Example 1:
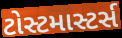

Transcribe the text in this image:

ટોસ્ટમાસ્ટર્સ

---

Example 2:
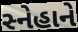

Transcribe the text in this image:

સ્નેહાને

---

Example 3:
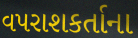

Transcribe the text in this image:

વપરાશકર્તાના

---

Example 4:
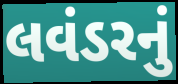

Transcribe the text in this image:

લવંડરનું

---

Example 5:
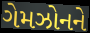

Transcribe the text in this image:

ગેમઝોનને